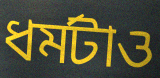
ধর্মটাও